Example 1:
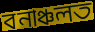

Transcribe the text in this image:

বনাঞ্চলত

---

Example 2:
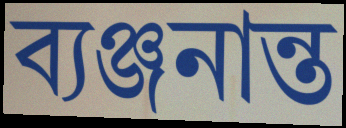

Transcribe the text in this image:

ব্যঞ্জনান্ত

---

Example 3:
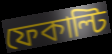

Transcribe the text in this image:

ফেকাল্টি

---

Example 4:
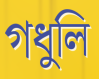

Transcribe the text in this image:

গধুলি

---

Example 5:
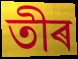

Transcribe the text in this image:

তীৰ